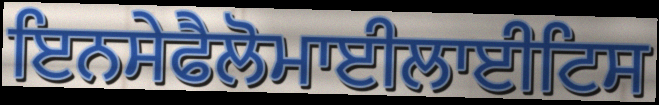
ਇਨਸੇਫੈਲੋਮਾਈਲਾਈਟਿਸ